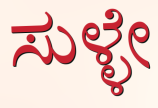
ಸುಳ್ಳೇ